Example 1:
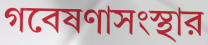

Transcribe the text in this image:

গবেষণাসংস্থার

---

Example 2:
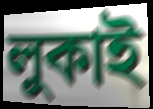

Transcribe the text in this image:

লুকাই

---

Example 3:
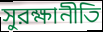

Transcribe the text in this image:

সুরক্ষানীতি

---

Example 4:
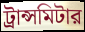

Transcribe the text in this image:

ট্রান্সমিটার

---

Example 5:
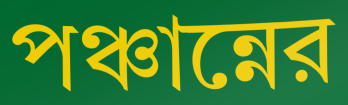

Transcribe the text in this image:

পঞ্চান্নের